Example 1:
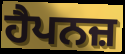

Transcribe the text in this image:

ਹੈਪਨਜ਼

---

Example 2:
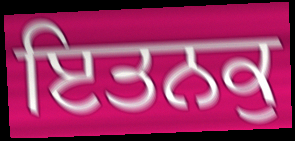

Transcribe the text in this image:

ਇਤਨਕੁ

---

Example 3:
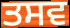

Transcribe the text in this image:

ਤਸਵ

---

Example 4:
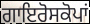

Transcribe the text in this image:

ਗਾਇਰੋਸਕੋਪਾਂ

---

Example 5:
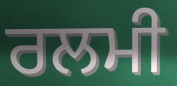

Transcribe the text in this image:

ਰਲਮੀ